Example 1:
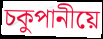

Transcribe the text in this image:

চকুপানীয়ে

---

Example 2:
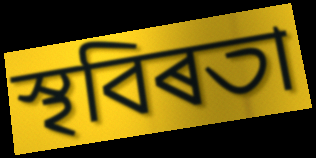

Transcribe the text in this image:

স্থবিৰতা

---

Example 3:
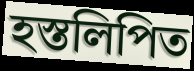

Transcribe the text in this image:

হস্তলিপিত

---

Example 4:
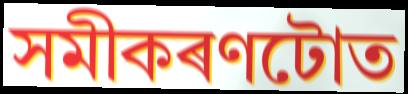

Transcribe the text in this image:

সমীকৰণটোত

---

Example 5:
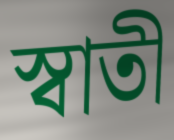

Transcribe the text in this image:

স্বাতী